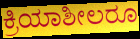
ಕ್ರಿಯಾಶೀಲರೂ